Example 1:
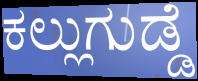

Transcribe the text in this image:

ಕಲ್ಲುಗುಡ್ಡೆ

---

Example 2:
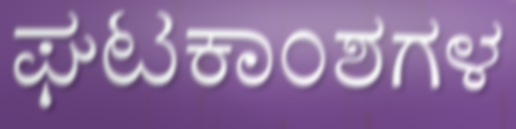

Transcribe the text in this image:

ಘಟಕಾಂಶಗಳ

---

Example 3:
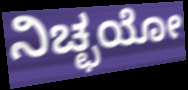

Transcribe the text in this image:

ನಿಚ್ಛಯೋ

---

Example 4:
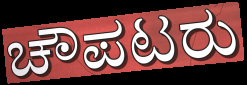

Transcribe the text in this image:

ಚೌಪಟರು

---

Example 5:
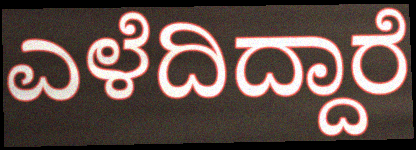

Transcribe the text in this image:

ಎಳೆದಿದ್ದಾರೆ